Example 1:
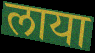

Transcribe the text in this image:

लाया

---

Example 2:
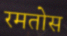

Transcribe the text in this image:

रमतोस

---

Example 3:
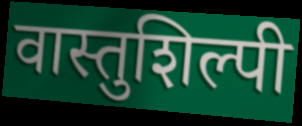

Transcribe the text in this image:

वास्तुशिल्पी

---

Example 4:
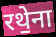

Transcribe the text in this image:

रथे॒ना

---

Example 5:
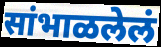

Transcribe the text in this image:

सांभाळलेलं